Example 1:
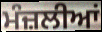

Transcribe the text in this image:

ਮੰਜ਼ਲੀਆਂ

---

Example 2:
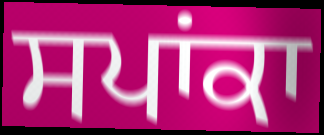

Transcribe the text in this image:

ਸਪਾਂਕਾ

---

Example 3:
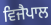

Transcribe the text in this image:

ਵਿਜੈਪਾਲ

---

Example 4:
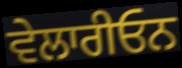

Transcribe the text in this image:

ਵੇਲਾਰੀਓਨ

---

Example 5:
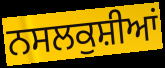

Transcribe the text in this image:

ਨਸਲਕੁਸ਼ੀਆਂ